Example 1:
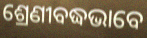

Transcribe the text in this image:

ଶ୍ରେଣୀବଦ୍ଧଭାବେ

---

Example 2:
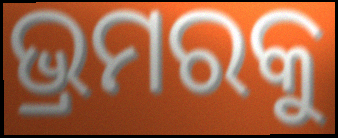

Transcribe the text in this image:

ଭ୍ରମରକୁ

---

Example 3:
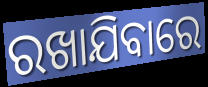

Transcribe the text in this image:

ରଖାଯିବାରେ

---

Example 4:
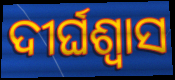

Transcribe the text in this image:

ଦୀର୍ଘଶ୍ଵାସ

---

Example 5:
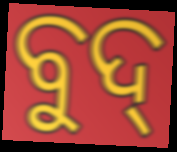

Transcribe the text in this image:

ବୁଦ୍